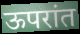
ऊपरांत